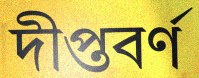
দীপ্তবর্ণ